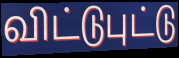
விட்டுபுட்டு